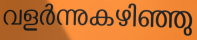
വളർന്നുകഴിഞ്ഞു